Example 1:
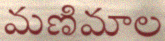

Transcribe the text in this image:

మణిమాల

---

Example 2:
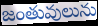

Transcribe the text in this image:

జంతువులును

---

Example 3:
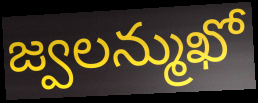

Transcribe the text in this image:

జ్వలన్ముఖో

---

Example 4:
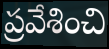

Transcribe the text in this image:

ప్రవేశించి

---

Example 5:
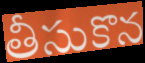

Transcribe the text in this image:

తీసుకొన